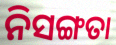
ନିସଙ୍ଗତା